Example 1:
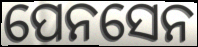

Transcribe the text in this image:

ପେନସେନ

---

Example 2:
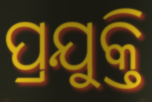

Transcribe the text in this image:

ପ୍ରଯୁକ୍ତି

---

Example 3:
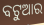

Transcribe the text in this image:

ବଟୁଆର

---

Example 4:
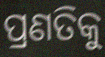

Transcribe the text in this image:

ପ୍ରଣତିକୁ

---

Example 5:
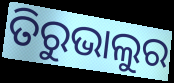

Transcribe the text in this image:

ତିରୁଭାଲୁର